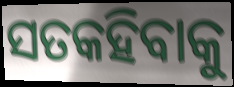
ସତକହିବାକୁ